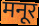
मनूर